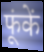
फूंकें